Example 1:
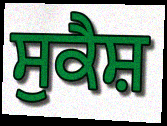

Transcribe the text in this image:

ਸੁਕੈਸ਼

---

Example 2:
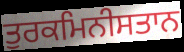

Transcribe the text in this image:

ਤੁਰਕਮਿਨੀਸਤਾਨ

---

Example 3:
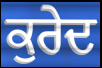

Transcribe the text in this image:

ਕੁਰੇਦ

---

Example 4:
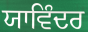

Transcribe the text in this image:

ਯਾਵਿੰਦਰ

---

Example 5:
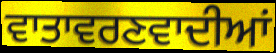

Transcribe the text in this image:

ਵਾਤਾਵਰਣਵਾਦੀਆਂ